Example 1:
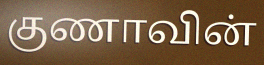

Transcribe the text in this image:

குணாவின்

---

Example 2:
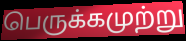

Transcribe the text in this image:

பெருக்கமுற்று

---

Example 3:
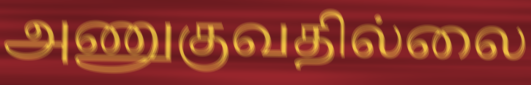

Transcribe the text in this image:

அணுகுவதில்லை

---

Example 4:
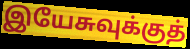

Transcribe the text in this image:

இயேசுவுக்குத்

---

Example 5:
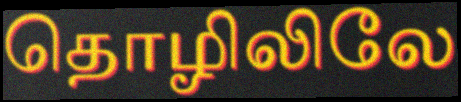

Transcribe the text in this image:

தொழிலிலே